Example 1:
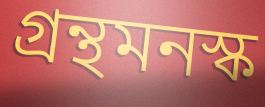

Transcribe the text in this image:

গ্রন্থমনস্ক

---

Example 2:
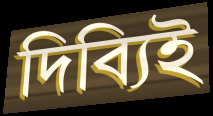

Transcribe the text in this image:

দিব্যিই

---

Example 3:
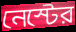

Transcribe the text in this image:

নেস্টের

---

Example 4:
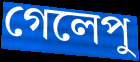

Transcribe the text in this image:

গেলেপু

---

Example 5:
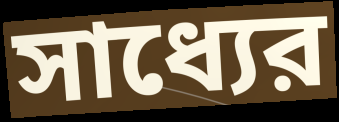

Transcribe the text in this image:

সাধ্যের